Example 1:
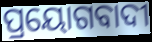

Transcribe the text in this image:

ପ୍ରୟୋଗବାଦୀ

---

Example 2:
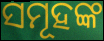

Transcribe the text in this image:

ସମୂହଙ୍କ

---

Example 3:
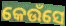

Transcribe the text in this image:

କେଉଁସେ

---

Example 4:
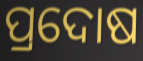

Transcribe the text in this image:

ପ୍ରଦୋଷ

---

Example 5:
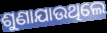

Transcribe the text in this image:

ଶୁଣାଯାଉଥିଲେ